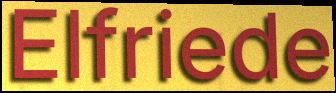
Elfriede